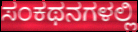
ಸಂಕಥನಗಳಲ್ಲಿ